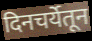
दिनचर्येतून